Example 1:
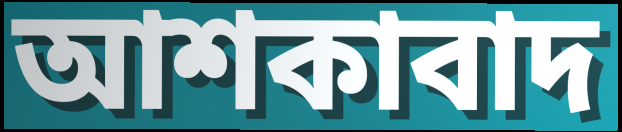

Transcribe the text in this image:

আশকাবাদ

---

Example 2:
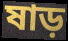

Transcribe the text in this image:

ষাড়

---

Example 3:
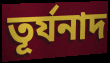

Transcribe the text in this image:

তূর্যনাদ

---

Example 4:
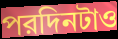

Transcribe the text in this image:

পরদিনটাও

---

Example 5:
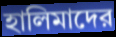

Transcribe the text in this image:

হালিমাদের